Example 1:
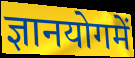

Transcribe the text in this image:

ज्ञानयोगमें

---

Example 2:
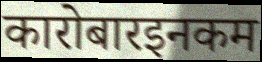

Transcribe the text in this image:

कारोबारइनकम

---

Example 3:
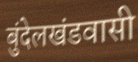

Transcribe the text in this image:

बुंदेलखंडवासी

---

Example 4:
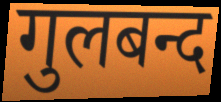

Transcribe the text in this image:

गुलबन्द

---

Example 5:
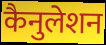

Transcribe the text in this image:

कैनुलेशन